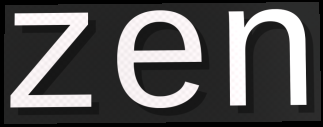
zen